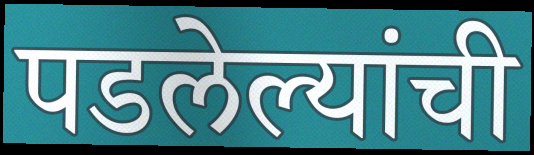
पडलेल्यांची